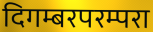
दिगम्बरपरम्परा